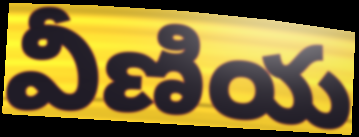
వీణియ